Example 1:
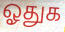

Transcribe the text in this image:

ஓதுக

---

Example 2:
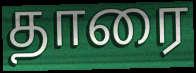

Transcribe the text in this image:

தாரை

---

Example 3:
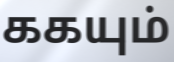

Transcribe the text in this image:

ககயும்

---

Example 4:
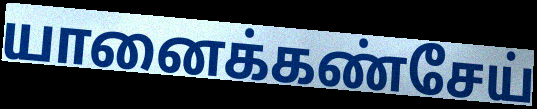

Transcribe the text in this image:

யானைக்கண்சேய்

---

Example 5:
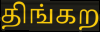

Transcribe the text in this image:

திங்கற